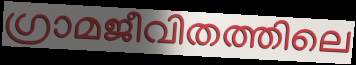
ഗ്രാമജീവിതത്തിലെ